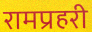
रामप्रहरी